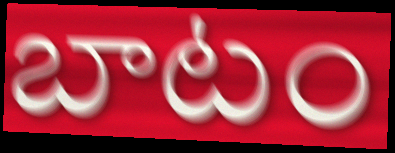
బాటం